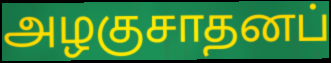
அழகுசாதனப்